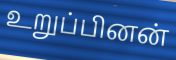
உறுப்பினன்